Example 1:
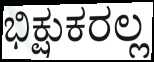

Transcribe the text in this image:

ಭಿಕ್ಷುಕರಲ್ಲ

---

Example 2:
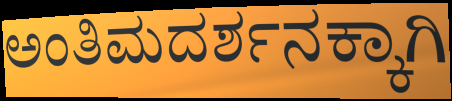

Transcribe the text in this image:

ಅಂತಿಮದರ್ಶನಕ್ಕಾಗಿ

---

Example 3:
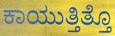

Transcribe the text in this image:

ಕಾಯುತ್ತಿತ್ತೊ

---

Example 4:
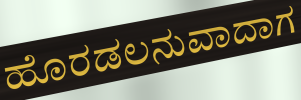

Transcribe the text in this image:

ಹೊರಡಲನುವಾದಾಗ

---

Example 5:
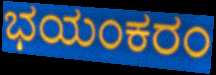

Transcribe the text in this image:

ಭಯಂಕರಂ